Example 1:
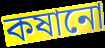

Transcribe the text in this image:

কষানো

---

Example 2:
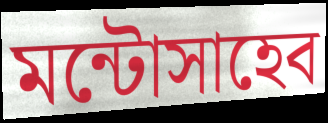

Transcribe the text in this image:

মন্টোসাহেব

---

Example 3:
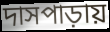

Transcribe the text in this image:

দাসপাড়ায়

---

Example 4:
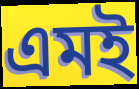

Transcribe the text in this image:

এমই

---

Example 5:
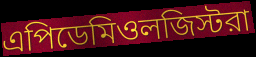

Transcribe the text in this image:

এপিডেমিওলজিস্টরা